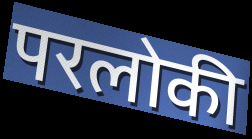
परलोकी